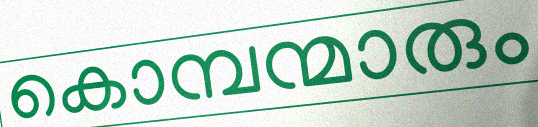
കൊമ്പന്മാരും